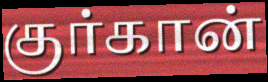
குர்கான்